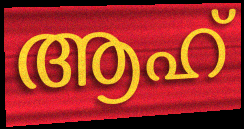
ആഹ്